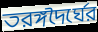
তরঙ্গদৈর্ঘের